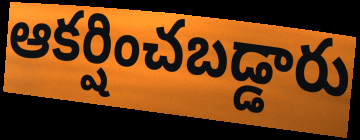
ఆకర్షించబడ్డారు